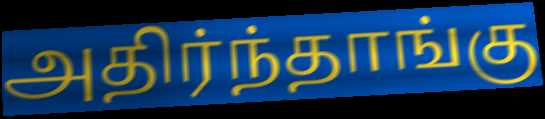
அதிர்ந்தாங்கு